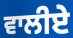
ਵਾਲੀਏ